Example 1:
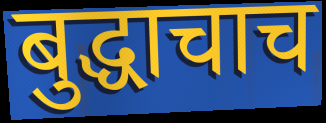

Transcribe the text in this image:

बुद्धाचाच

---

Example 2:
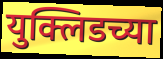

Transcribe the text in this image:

युक्लिडच्या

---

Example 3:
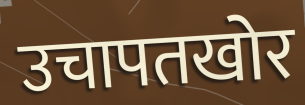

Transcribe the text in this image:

उचापतखोर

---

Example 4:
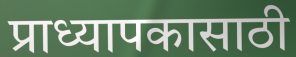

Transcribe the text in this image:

प्राध्यापकासाठी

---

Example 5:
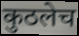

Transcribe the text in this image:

कुठलेच